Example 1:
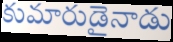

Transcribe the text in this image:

కుమారుడైనాడు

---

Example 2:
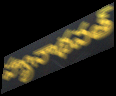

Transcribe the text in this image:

హ్యనాథవత్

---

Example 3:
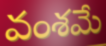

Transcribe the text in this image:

వంశమే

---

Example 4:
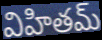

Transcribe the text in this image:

విహితమ్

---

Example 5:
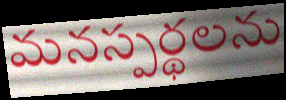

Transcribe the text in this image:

మనస్పర్థలను